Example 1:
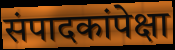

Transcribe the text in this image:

संपादकांपेक्षा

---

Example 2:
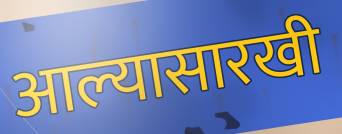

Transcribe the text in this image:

आल्यासारखी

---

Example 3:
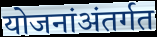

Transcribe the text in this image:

योजनांअंतर्गत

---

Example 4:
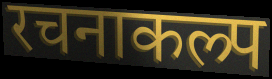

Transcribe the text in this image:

रचनाकल्प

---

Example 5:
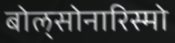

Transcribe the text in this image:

बोल्सोनारिस्मो